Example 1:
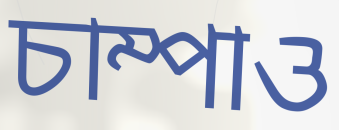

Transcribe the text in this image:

চাম্পাও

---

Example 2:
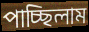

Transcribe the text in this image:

পাচ্ছিলাম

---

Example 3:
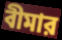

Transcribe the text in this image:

বীমার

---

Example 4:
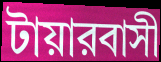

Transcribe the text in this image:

টায়ারবাসী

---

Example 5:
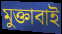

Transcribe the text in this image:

মুক্তাবাই